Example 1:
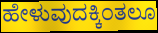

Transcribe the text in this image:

ಹೇಳುವುದಕ್ಕಿಂತಲೂ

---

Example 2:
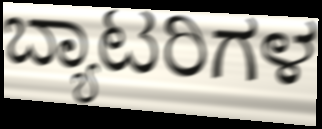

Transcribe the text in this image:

ಬ್ಯಾಟರಿಗಳ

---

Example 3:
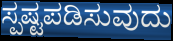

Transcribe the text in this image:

ಸ್ಪಷ್ಟಪಡಿಸುವುದು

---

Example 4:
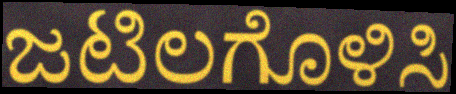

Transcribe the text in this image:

ಜಟಿಲಗೊಳಿಸಿ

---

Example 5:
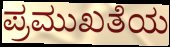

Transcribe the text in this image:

ಪ್ರಮುಖತೆಯ